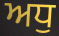
ਅਧੁ